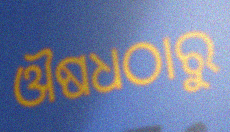
ଔଷଧଠାରୁ